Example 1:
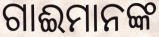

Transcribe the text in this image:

ଗାଈମାନଙ୍କ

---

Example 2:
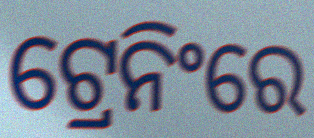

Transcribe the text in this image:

ଟ୍ରେନିଂରେ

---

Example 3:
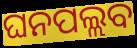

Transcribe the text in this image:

ଘନପଲ୍ଲବ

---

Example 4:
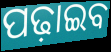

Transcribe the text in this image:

ପଢ଼ାଇବ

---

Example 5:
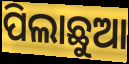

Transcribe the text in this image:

ପିଲାଛୁଆ